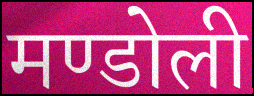
मण्डोली